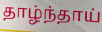
தாழ்ந்தாய்